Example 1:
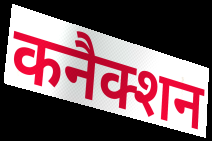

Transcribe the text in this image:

कनैक्शन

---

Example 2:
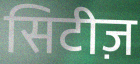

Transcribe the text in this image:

सिटीज़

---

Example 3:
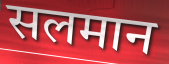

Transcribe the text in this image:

सलमान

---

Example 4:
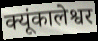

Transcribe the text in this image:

क्यूंकालेश्वर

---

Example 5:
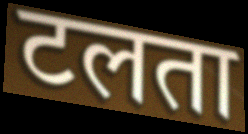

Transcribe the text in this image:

टलता